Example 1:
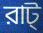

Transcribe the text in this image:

রাট্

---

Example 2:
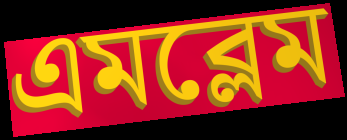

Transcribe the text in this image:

এমব্লেম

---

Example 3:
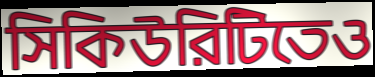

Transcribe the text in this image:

সিকিউরিটিতেও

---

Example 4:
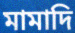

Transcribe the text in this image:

মামাদি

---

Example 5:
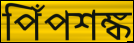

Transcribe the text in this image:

পিঁপশঙ্ক